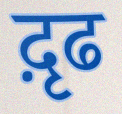
द़ृढ